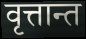
वृत्तान्त